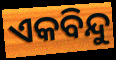
ଏକବିନ୍ଦୁ